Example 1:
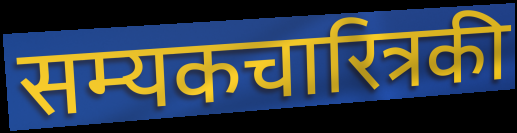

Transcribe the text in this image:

सम्यकचारित्रकी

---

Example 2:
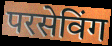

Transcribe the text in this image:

परसेविंग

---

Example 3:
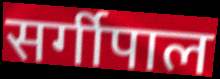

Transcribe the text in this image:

सर्गीपाल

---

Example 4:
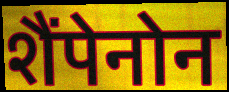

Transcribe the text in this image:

शैंपेनोन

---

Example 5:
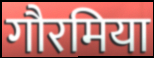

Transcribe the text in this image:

गौरमिया